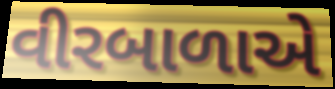
વીરબાળાએ